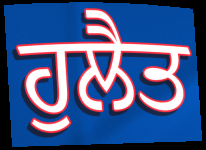
ਹੁਲੈਤ